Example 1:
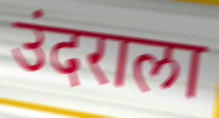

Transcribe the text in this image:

उंदराला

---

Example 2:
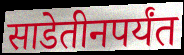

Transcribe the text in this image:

साडेतीनपर्यंत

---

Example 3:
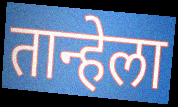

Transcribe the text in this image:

तान्हेला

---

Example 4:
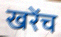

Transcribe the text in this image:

खरेंच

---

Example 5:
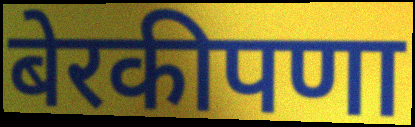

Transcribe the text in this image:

बेरकीपणा